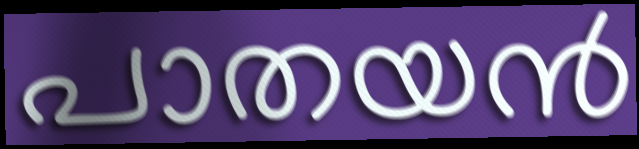
പാതയൻ